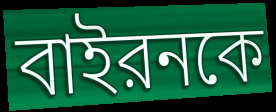
বাইরনকে